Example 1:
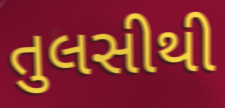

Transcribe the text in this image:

તુલસીથી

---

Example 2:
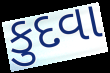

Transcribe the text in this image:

કુદવા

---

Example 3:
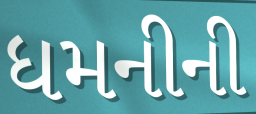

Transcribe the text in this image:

ધમનીની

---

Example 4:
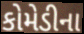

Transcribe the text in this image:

કોમેડીના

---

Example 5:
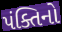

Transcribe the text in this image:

પંક્તિનો